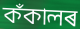
কঁকালৰ